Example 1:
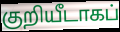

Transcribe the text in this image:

குறியீடாகப்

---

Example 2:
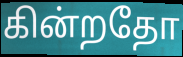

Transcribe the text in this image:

கின்றதோ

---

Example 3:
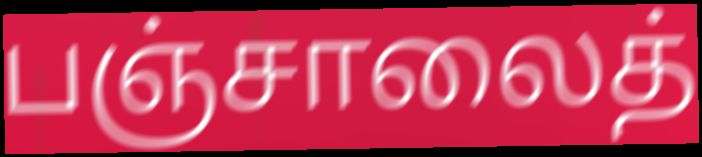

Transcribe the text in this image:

பஞ்சாலைத்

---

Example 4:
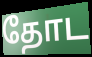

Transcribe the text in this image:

தோட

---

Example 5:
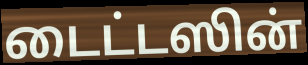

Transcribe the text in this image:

டைட்டஸின்